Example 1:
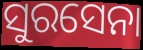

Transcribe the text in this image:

ସୁରସେନା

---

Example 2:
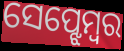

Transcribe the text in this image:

ସେପ୍ଝେମ୍ବର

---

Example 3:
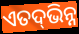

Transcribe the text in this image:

ଏତଦ୍‌ଭିନ୍ନ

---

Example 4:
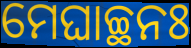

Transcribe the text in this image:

ମେଘାଚ୍ଛନଃ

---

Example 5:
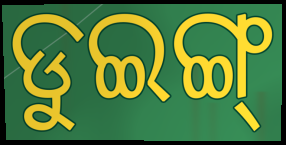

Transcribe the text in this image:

ଡୁଇଙ୍ଗ୍